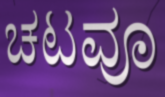
ಚಟವೂ